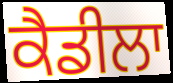
ਕੈਡੀਲਾ